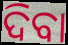
ଦିବା